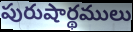
పురుషార్థములు